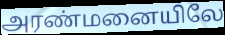
அரண்மனையிலே